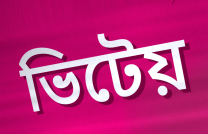
ভিটেয়